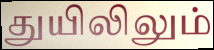
துயிலிலும்